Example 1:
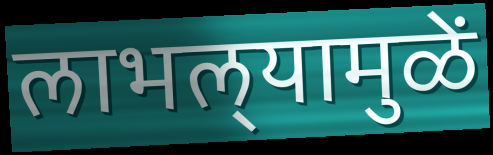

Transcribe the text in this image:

लाभल्यामुळें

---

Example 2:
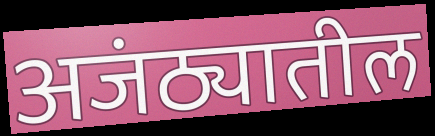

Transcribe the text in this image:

अजंठ्यातील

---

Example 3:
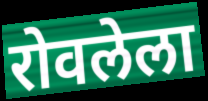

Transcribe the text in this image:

रोवलेला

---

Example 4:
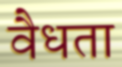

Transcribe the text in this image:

वैधता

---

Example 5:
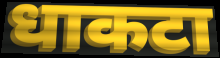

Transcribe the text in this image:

धाकटा